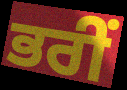
ਭਰੀਂ